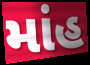
માંહ